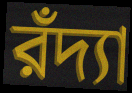
রঁদ্যা